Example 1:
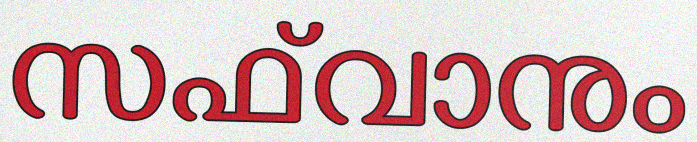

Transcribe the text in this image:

സഫ്‌വാനും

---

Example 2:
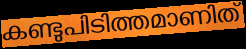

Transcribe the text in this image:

കണ്ടുപിടിത്തമാണിത്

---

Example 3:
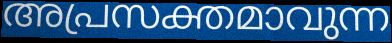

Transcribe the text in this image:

അപ്രസക്തമാവുന്ന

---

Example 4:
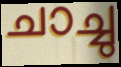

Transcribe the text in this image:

ചാച്ചു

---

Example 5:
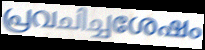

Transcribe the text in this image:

പ്രവചിച്ചശേഷം